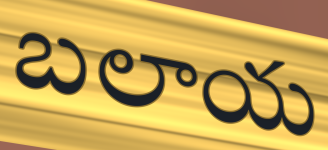
బలాయ